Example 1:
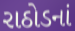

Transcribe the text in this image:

રાઠોડનાં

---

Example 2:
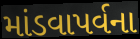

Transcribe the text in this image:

માંડવાપર્વના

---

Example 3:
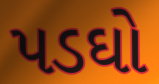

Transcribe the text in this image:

પડઘો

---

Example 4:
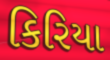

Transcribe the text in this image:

કિરિયા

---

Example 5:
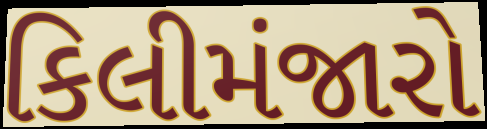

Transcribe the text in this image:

કિલીમંજારો